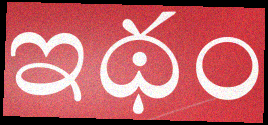
ఇథం